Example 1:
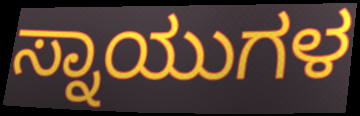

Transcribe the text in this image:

ಸ್ನಾಯುಗಳ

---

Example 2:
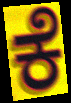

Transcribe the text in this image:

ಕೆ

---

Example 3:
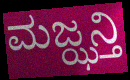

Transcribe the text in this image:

ಮಜ್ಝನ್ತಿ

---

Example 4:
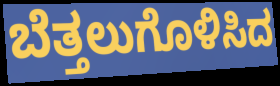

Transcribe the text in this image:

ಬೆತ್ತಲುಗೊಳಿಸಿದ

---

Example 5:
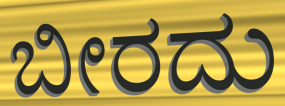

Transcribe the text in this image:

ಬೀರದು